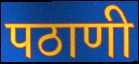
पठाणी